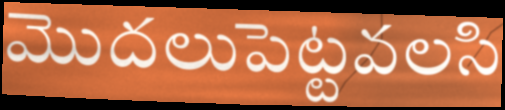
మొదలుపెట్టవలసి